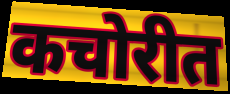
कचोरीत